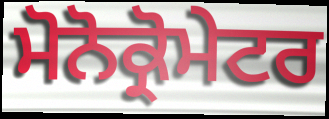
ਮੋਨੋਕ੍ਰੋਮੇਟਰ